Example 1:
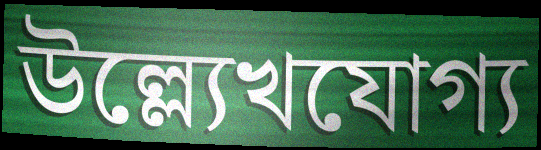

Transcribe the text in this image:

উল্ল্যেখযোগ্য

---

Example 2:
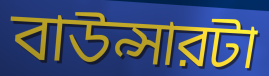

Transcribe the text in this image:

বাউন্সারটা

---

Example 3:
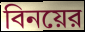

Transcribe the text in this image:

বিনয়ের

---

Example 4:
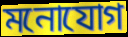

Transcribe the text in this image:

মনোযোগ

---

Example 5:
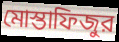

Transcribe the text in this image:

মোস্তাফিজুর